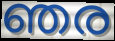
ഞര